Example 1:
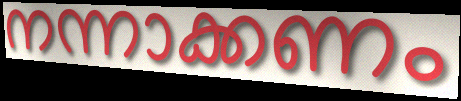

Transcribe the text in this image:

നന്നാക്കണം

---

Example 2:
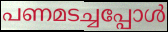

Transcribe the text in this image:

പണമടച്ചപ്പോൾ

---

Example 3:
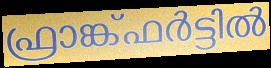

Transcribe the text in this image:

ഫ്രാങ്ക്ഫർട്ടിൽ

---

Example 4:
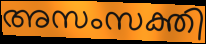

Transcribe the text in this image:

അസംസക്തി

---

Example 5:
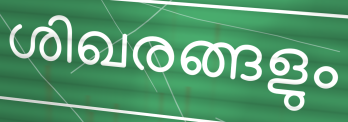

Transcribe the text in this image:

ശിഖരങ്ങളും